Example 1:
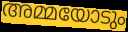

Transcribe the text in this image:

അമ്മയോടും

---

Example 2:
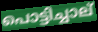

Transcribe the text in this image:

പൊട്ടിച്ചാല്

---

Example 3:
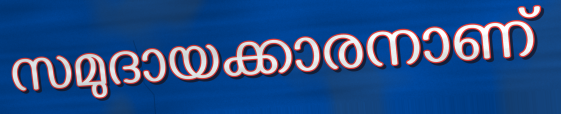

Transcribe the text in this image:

സമുദായക്കാരനാണ്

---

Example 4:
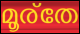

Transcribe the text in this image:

മൂര്തേ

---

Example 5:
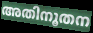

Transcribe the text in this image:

അതിനൂതന